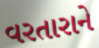
વરતારાને